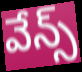
వేన్స్